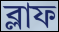
ব্লাফ